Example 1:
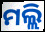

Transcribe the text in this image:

ମଲ୍ଲି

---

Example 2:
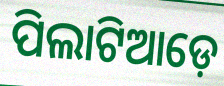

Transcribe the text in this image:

ପିଲାଟିଆଡ଼େ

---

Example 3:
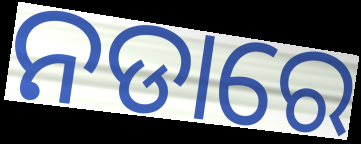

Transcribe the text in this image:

ନଡାରେ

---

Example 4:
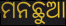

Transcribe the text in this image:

ମନଛୁଆ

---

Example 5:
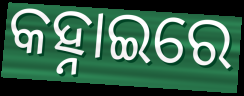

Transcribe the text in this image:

କହ୍ନାଇରେ